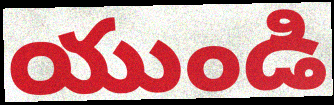
యుండి